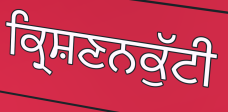
ਕ੍ਰਿਸ਼ਣਨਕੁੱਟੀ